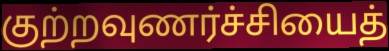
குற்றவுணர்ச்சியைத்